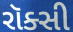
રૉક્સી